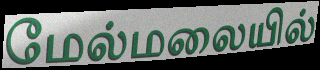
மேல்மலையில்